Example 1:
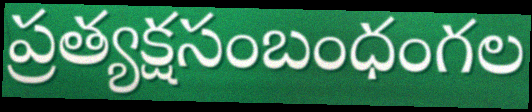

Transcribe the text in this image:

ప్రత్యక్షసంబంధంగల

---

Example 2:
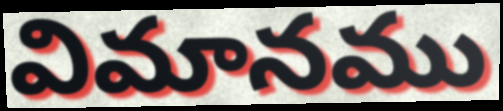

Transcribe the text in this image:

విమానము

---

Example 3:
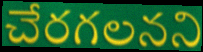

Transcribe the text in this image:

చేరగలనని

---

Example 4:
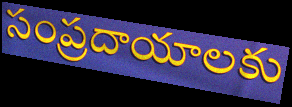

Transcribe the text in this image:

సంప్రదాయాలకు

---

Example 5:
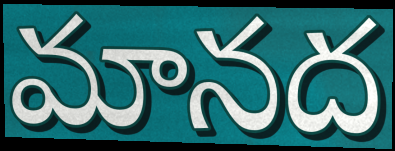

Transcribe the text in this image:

మానద